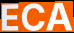
ECA